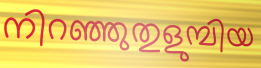
നിറഞ്ഞുതുളുമ്പിയ